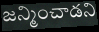
జన్మించాడని